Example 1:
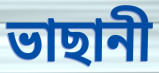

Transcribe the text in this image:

ভাছানী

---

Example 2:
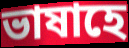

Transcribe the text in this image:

ভাষাহে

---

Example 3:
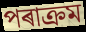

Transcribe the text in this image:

পৰাক্ৰম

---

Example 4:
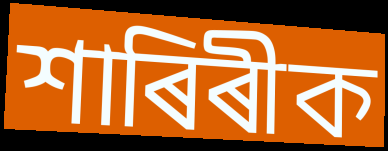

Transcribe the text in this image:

শাৰিৰীক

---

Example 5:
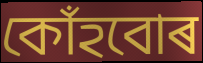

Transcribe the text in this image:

কোঁহবোৰ